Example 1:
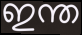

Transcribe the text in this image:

ഇന്ത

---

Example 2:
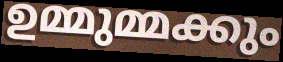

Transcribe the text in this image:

ഉമ്മുമ്മക്കും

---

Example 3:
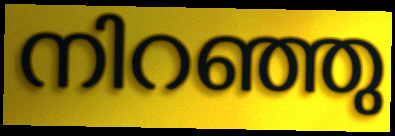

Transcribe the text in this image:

നിറഞ്ഞു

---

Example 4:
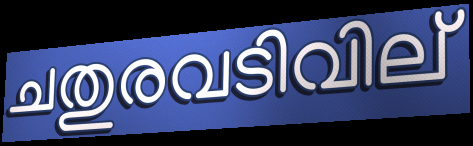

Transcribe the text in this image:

ചതുരവടിവില്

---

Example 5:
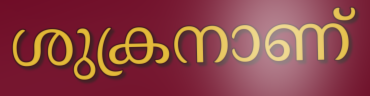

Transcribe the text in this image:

ശുക്രനാണ്